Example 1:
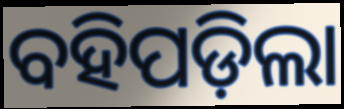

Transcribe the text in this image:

ବହିପଡ଼ିଲା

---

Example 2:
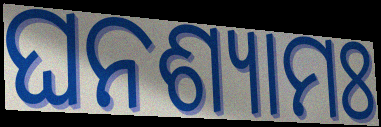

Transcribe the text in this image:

ଘନଶ୍ଯାମଃ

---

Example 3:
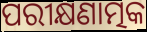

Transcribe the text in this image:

ପରୀକ୍ଷଣାତ୍ମକ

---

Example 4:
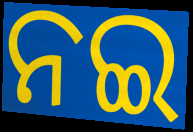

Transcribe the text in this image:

ନଇ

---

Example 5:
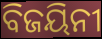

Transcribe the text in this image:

ବିଜୟିନୀ